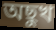
অছুখ